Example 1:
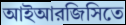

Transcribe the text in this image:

আইআরজিসিতে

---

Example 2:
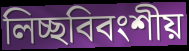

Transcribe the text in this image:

লিচ্ছবিবংশীয়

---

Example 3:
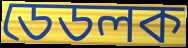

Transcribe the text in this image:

ডেডলক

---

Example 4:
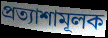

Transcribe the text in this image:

প্রত্যাশামূলক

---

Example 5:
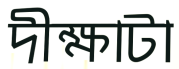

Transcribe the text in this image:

দীক্ষাটা